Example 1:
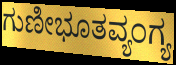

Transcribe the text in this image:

ಗುಣೀಭೂತವ್ಯಂಗ್ಯ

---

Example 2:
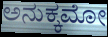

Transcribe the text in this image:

ಅನುಕ್ಕಮೋ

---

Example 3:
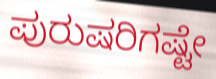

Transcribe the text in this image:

ಪುರುಷರಿಗಷ್ಟೇ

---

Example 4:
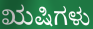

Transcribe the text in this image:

ಋಷಿಗಳು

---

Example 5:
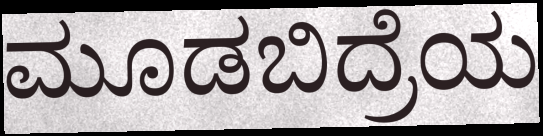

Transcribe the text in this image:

ಮೂಡಬಿದ್ರೆಯ